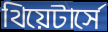
থিয়েটার্সে